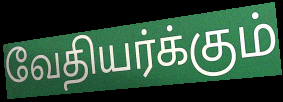
வேதியர்க்கும்